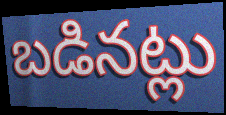
బడినట్లు